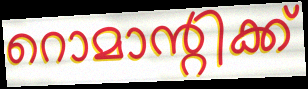
റൊമാന്റിക്ക്